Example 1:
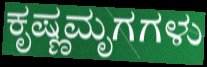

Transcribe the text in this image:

ಕೃಷ್ಣಮೃಗಗಳು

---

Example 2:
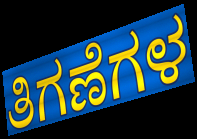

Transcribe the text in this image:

ತಿಗಣೆಗಳ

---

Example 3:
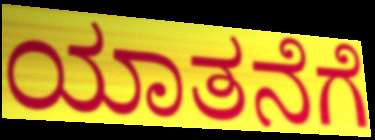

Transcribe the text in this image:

ಯಾತನೆಗೆ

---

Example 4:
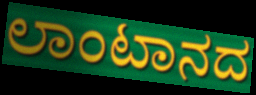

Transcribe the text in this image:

ಲಾಂಟಾನದ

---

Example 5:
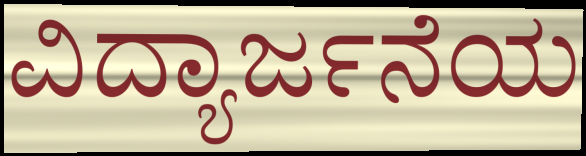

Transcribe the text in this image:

ವಿದ್ಯಾರ್ಜನೆಯ